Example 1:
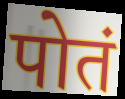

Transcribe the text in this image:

पोतं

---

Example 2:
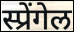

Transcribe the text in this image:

स्प्रेंगेल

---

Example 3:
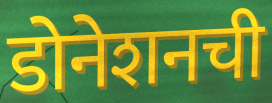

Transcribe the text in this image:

डोनेशनची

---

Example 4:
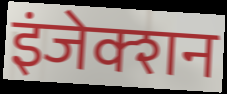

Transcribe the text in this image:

इंजेक्शन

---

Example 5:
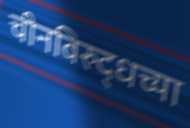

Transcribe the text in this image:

चीनविरुद्धच्या